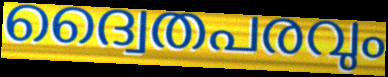
ദ്വൈതപരവും